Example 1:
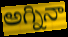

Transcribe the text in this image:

అగ్నినా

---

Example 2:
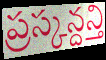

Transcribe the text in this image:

ప్రస్కన్దన్తి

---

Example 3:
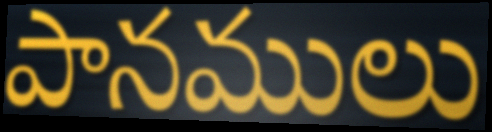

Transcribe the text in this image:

పానములు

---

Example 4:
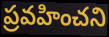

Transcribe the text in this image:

ప్రవహించని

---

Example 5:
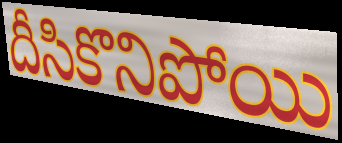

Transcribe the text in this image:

దీసికొనిపోయి